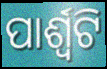
ପାର୍ଶ୍ଵଟି